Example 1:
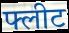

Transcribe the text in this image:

फ्लीट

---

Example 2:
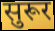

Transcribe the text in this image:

सुरूर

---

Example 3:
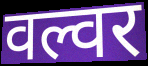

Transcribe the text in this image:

वल्वर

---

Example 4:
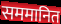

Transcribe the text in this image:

सममानित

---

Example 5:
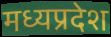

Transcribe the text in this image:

मध्यप्रदेश